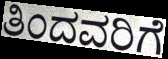
ತಿಂದವರಿಗೆ